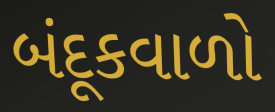
બંદૂકવાળો